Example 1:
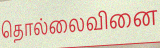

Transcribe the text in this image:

தொல்லைவினை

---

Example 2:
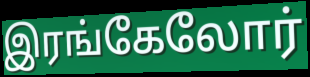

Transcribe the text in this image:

இரங்கேலோர்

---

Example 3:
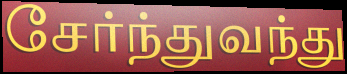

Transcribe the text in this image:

சேர்ந்துவந்து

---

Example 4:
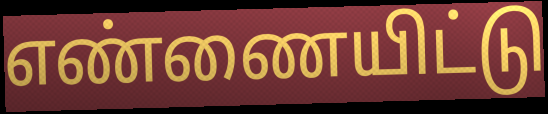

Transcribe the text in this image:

எண்ணையிட்டு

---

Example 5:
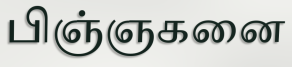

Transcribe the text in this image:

பிஞ்ஞகனை